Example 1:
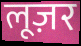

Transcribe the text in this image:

लूज़र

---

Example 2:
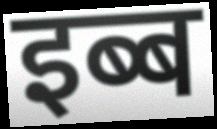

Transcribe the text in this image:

इब्ब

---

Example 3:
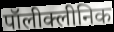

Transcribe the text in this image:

पॉलीक्लीनिक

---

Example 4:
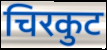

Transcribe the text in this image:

चिरकुट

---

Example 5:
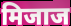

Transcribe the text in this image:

मिजाज